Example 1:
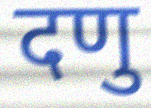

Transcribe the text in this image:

दणु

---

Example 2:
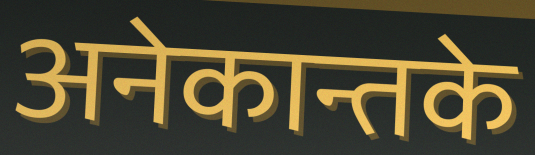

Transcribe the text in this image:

अनेकान्तके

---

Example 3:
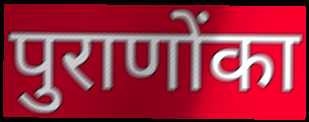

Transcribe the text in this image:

पुराणोंका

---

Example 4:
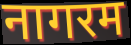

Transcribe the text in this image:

नागरम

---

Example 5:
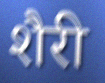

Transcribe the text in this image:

शैरी